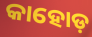
କାହୋଡ଼